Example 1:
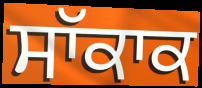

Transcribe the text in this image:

ਸਾੱਕਾਕ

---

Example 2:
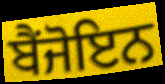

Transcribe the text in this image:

ਬੈਂਜੋਇਨ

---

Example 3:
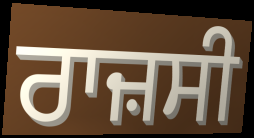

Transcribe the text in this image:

ਰਾਜ਼ਸੀ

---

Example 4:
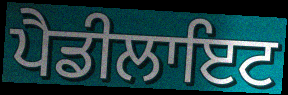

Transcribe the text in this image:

ਪੈਡੀਲਾਇਟ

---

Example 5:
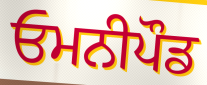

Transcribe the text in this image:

ਓਮਨੀਪੌਡ